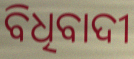
ବିଧିବାଦୀ